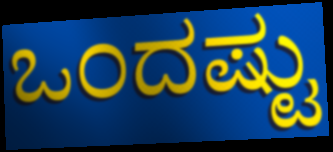
ಒಂದಷ್ಟು